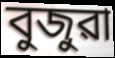
বুজুৱা